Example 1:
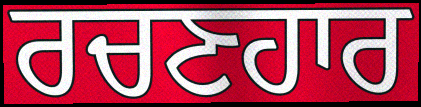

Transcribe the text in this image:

ਰਚਣਹਾਰ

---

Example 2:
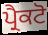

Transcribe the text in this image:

ਪ੍ਰੈਕਟੋ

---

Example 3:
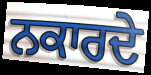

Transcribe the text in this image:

ਨਕਾਰਦੇ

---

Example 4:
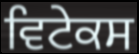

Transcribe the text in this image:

ਵਿਟੇਕਸ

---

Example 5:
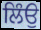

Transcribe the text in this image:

ਲਿੰਉ